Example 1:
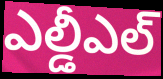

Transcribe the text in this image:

ఎల్డీఎల్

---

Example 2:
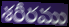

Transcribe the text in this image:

శరీరము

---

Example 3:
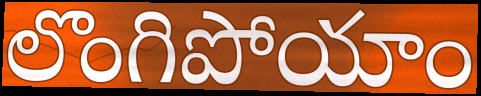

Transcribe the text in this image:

లొంగిపోయాం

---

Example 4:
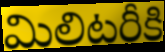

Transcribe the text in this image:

మిలిటరీకి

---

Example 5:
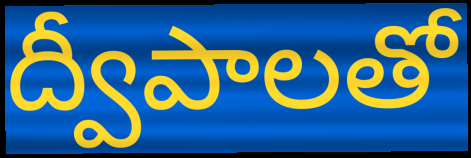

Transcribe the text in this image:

ద్వీపాలతో